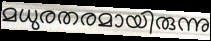
മധുരതരമായിരുന്നു